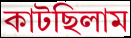
কাটছিলাম